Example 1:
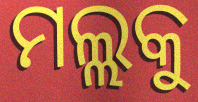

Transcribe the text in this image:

ମଲ୍ଲକୁ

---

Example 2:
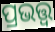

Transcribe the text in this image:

ପ୍ରଭତ୍ତ୍ଵ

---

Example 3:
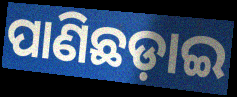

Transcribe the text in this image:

ପାଣିଛଡ଼ାଇ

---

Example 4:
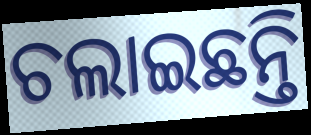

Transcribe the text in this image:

ଚଲାଇଛନ୍ତି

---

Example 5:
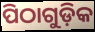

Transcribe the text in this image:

ପିଠାଗୁଡ଼ିକ